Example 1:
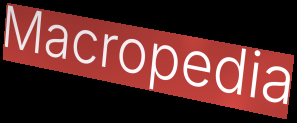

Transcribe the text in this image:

Macropedia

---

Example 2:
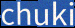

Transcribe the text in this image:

chuki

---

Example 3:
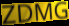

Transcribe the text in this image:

ZDMG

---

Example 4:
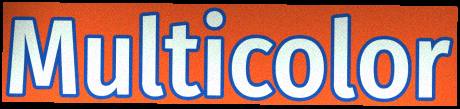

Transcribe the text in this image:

Multicolor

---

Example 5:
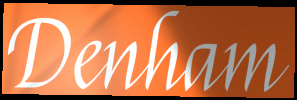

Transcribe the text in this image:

Denham